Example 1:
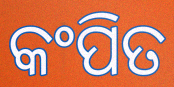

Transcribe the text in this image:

କଂପିତ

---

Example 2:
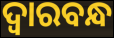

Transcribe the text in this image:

ଦ୍ବାରବନ୍ଧ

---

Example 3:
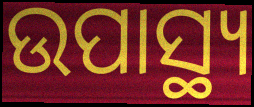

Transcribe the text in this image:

ଉପାସ୍ଥ୍ୟ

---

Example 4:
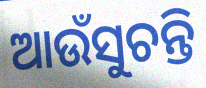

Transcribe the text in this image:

ଆଉଁସୁଚନ୍ତି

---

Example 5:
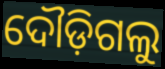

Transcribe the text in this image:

ଦୌଡ଼ିଗଲୁ